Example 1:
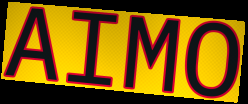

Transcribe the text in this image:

AIMO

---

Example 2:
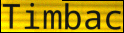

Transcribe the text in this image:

Timbac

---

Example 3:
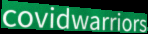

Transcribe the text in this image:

covidwarriors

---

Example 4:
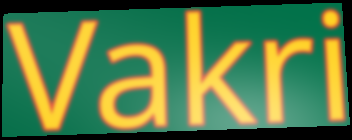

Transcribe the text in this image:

Vakri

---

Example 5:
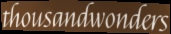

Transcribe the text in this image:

thousandwonders